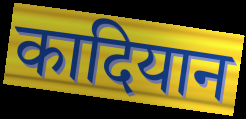
कादियान